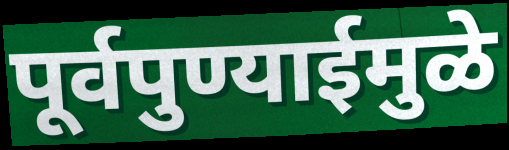
पूर्वपुण्याईमुळे